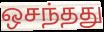
ஒசந்தது